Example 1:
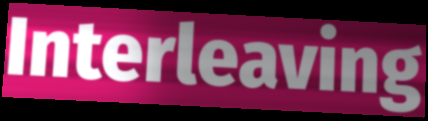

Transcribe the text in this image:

Interleaving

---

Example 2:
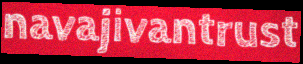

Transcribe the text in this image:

navajivantrust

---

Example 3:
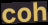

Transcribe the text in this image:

coh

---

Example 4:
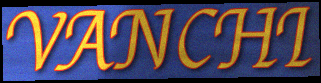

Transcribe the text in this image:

VANCHI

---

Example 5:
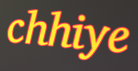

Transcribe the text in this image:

chhiye